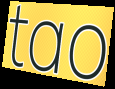
tao